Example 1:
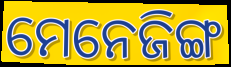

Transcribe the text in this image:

ମେନେଜିଙ୍ଗ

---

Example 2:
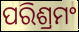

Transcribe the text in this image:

ପରିଶ୍ରମଂ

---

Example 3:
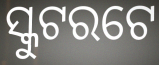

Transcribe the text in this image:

ସ୍କୁଟରଟେ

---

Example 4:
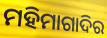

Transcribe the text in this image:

ମହିମାଗାଦିର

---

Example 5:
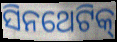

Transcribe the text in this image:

ସିନଥେଟିକ୍